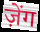
ज़ेंग